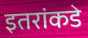
इतरांकडे